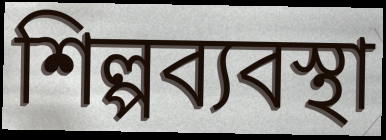
শিল্পব্যবস্থা